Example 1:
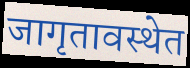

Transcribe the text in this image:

जागृतावस्थेत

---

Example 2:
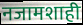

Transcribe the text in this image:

नजामशाही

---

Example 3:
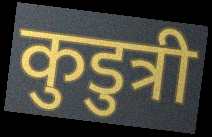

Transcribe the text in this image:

कुडुत्री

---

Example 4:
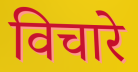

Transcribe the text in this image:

विचारे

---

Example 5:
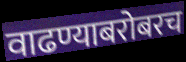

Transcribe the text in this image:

वाढण्याबरोबरच